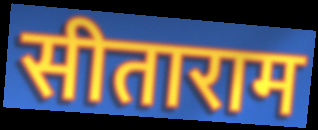
सीताराम